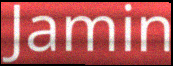
Jamin